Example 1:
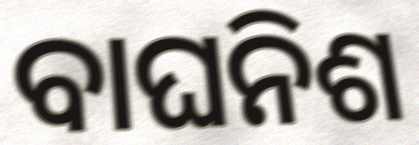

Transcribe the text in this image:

ବାଘନିଶ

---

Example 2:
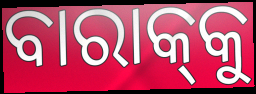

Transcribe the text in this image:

ବାରାକ୍‌କୁ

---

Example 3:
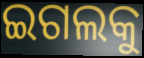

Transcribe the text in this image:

ଇଗଲକୁ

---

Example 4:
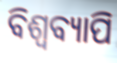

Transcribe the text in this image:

ବିଶ୍ବବ୍ୟାପି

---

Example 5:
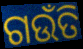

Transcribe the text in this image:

ଗଉଁତି